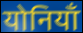
योनियाँ